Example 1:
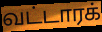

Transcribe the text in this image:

வட்டாரக்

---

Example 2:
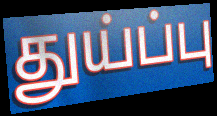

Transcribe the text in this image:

துய்ப்பு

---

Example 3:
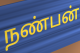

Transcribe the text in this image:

நண்பன்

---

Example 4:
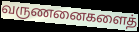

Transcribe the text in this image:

வருணனைகளைத்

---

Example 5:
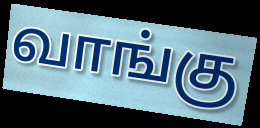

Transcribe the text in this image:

வாங்கு